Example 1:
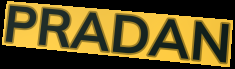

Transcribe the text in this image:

PRADAN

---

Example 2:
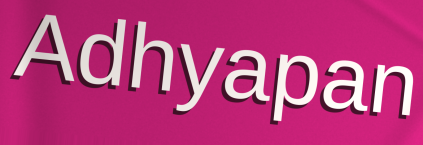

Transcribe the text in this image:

Adhyapan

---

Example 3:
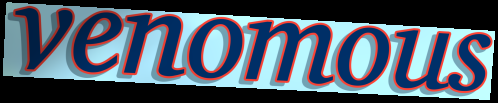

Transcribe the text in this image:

venomous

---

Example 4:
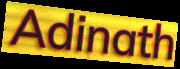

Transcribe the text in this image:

Adinath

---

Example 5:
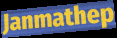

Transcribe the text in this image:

Janmathep